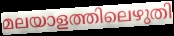
മലയാളത്തിലെഴുതി